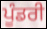
ਪੂੰਡਰੀ